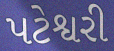
પટેશ્વરી